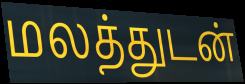
மலத்துடன்